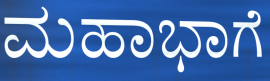
ಮಹಾಭಾಗೆ